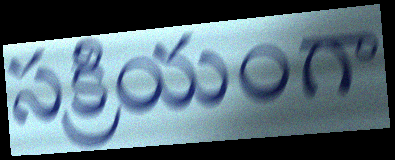
సక్రియంగా